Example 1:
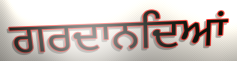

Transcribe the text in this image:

ਗਰਦਾਨਦਿਆਂ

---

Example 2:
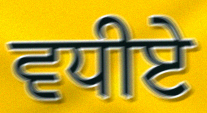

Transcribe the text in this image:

ਵਧੀਏ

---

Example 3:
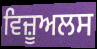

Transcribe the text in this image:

ਵਿਜ਼ੂਅਲਸ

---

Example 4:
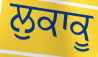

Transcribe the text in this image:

ਲੁਕਾਕੂ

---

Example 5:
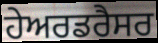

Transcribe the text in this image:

ਹੇਅਰਡਰੈਸਰ